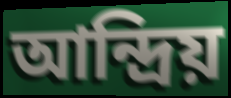
আন্দ্রিয়